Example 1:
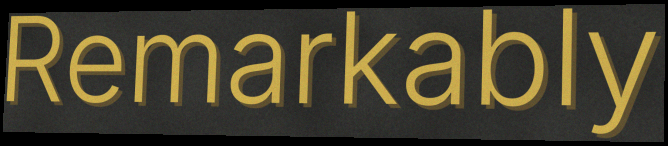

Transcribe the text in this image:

Remarkably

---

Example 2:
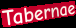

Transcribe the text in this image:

Tabernae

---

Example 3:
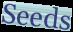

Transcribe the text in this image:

Seeds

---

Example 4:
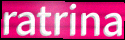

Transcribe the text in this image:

ratrina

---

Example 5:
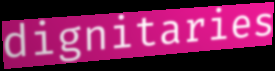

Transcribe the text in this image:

dignitaries